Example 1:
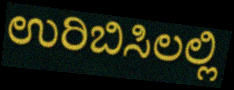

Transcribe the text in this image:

ಉರಿಬಿಸಿಲಲ್ಲಿ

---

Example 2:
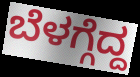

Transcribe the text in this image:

ಬೆಳಗ್ಗೆದ್ದ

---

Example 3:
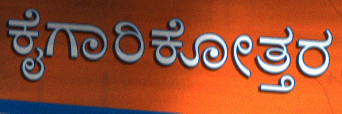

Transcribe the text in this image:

ಕೈಗಾರಿಕೋತ್ತರ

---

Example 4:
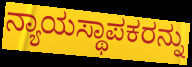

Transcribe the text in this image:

ನ್ಯಾಯಸ್ಥಾಪಕರನ್ನು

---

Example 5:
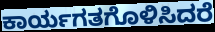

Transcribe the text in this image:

ಕಾರ್ಯಗತಗೊಳಿಸಿದರೆ